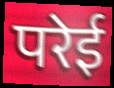
परेई